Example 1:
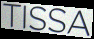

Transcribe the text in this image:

TISSA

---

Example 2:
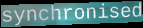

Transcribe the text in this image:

synchronised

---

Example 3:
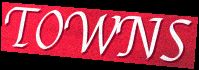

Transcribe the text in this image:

TOWNS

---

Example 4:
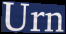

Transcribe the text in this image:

Urn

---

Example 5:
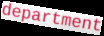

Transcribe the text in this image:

department